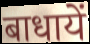
बाधायें